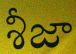
శీజా